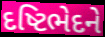
દષ્ટિભેદને